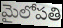
మైలోపతి